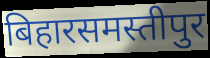
बिहारसमस्तीपुर